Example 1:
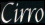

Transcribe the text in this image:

Cirro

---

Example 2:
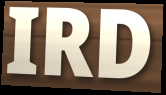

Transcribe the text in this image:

IRD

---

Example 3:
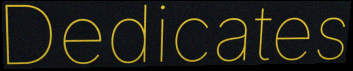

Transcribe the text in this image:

Dedicates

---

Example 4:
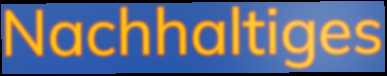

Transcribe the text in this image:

Nachhaltiges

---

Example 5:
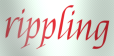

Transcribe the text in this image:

rippling